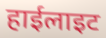
हाईलाइट